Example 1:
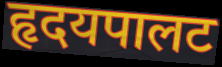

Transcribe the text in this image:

हृदयपालट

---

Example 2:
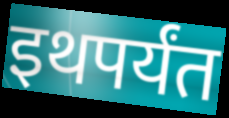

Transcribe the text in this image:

इथपर्यंत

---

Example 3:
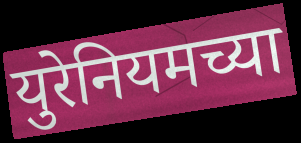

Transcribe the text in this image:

युरेनियमच्या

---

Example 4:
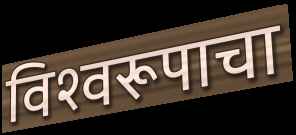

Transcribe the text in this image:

विश्वरूपाचा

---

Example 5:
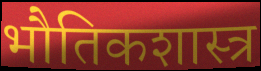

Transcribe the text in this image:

भौतिकशास्त्र